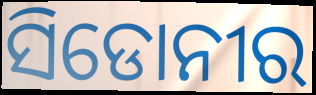
ସିଡୋନୀର